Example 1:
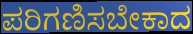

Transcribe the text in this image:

ಪರಿಗಣಿಸಬೇಕಾದ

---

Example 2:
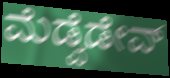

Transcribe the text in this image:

ಮೆಡ್ವೆಡೇವ್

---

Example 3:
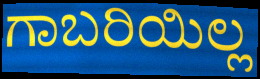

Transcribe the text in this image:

ಗಾಬರಿಯಿಲ್ಲ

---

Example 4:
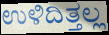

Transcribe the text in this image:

ಉಳಿದಿತ್ತಲ್ಲ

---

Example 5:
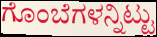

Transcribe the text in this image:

ಗೊಂಬೆಗಳನ್ನಿಟ್ಟು